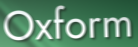
Oxform